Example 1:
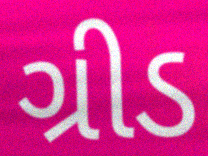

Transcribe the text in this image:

ગ્રીડ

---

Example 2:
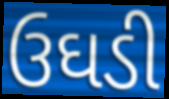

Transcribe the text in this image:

ઉઘડી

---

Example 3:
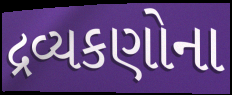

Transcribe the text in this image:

દ્રવ્યકણોના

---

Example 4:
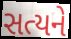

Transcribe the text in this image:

સત્યને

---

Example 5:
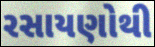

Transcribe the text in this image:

રસાયણોથી